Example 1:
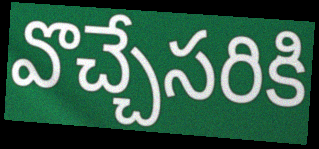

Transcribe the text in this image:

వొచ్చేసరికి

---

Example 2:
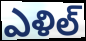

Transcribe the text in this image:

ఎళిల్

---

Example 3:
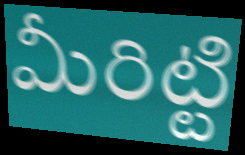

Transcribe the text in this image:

మీరిట్టి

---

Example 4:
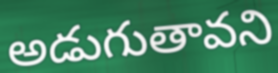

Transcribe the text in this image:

అడుగుతావని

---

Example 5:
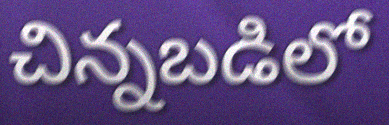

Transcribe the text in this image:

చిన్నబడిలో